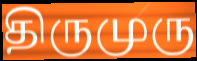
திருமுரு